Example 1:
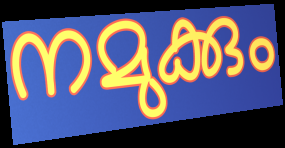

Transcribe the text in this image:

നമുക്കും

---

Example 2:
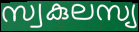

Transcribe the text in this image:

സ്വകുലസ്യ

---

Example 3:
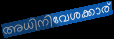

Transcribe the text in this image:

അധിനിവേശക്കാര്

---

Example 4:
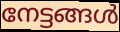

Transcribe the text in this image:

നേട്ടങ്ങൾ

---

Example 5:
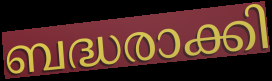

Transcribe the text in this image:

ബദ്ധരാക്കി